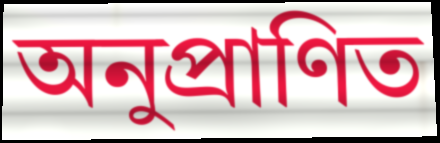
অনুপ্ৰাণিত